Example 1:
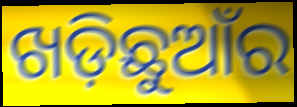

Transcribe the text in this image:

ଖଡ଼ିଛୁଆଁର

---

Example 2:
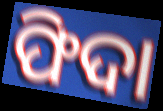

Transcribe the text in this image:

ଫିଦା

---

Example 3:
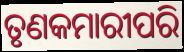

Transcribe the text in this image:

ତୃଣକମାରୀପରି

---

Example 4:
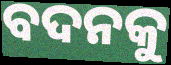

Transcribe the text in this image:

ବଦନକୁ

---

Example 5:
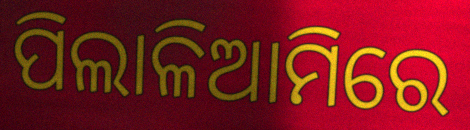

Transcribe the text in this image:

ପିଲାଳିଆମିରେ